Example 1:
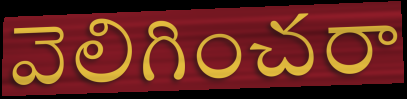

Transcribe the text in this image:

వెలిగించరా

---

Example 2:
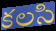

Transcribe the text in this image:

కలసి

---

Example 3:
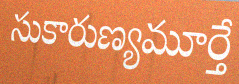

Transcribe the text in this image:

సుకారుణ్యమూర్తే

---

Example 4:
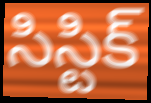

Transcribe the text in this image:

సిస్టిక్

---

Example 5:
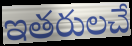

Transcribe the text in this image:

ఇతరులచే